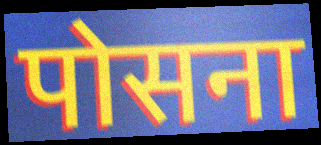
पोसना